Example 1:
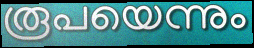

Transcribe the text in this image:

രൂപയെന്നും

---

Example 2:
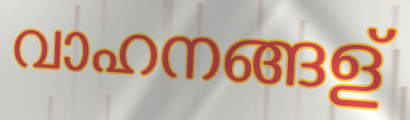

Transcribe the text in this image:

വാഹനങ്ങള്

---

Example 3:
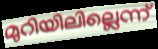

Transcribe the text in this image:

മുറിയിലില്ലെന്ന്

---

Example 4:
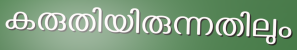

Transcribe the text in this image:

കരുതിയിരുന്നതിലും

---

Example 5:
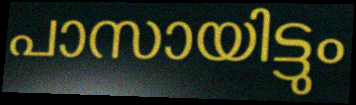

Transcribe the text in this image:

പാസായിട്ടും